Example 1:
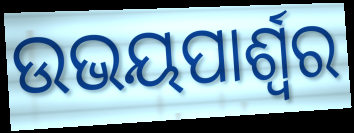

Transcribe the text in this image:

ଉଭୟପାର୍ଶ୍ୱର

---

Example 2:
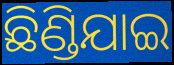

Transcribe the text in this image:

ଛିଣ୍ଡିଯାଇ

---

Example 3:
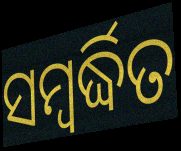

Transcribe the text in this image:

ସମ୍ବର୍ଦ୍ଧିତ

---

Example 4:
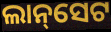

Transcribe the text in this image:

ଲାନ୍‌ସେଟ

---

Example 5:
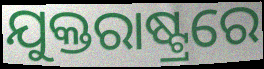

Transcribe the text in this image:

ଯୁକ୍ତରାଷ୍ଟ୍ରରେ